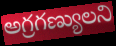
అగ్రగణ్యులని